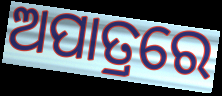
ଅପାତ୍ରରେ